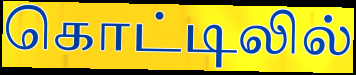
கொட்டிலில்